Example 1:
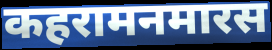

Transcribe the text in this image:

कहरामनमारस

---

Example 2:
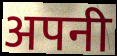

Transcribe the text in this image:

अपनी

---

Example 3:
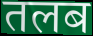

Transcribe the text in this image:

तलब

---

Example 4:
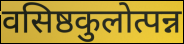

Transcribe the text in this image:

वसिष्ठकुलोत्पन्न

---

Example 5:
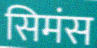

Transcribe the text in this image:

सिमंस